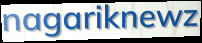
nagariknewz